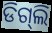
ଡିଗ୍‌ଲି